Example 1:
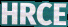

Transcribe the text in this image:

HRCE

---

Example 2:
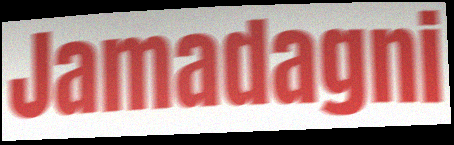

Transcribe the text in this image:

Jamadagni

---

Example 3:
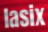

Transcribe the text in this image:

lasix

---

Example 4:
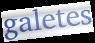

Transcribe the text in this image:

galetes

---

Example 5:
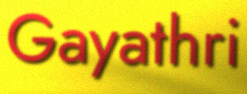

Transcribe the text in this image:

Gayathri